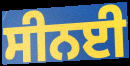
ਸੀਨਈ